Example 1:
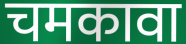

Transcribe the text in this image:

चमकावा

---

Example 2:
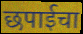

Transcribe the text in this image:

छपाईचा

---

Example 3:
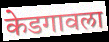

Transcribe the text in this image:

केडगावला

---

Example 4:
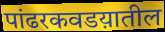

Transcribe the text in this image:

पांढरकवडय़ातील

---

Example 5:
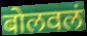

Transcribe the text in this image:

बोलवलं